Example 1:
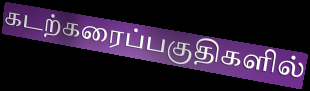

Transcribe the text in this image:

கடற்கரைப்பகுதிகளில்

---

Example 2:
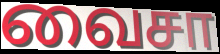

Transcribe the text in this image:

வைசா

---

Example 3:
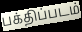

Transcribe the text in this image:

பக்திப்படம்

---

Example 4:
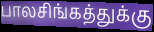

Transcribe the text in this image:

பாலசிங்கத்துக்கு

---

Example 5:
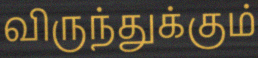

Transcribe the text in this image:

விருந்துக்கும்